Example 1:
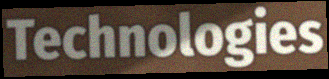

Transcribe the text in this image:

Technologies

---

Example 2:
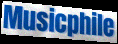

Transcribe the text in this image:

Musicphile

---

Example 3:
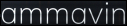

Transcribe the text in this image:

ammavin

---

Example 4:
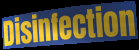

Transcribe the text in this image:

Disinfection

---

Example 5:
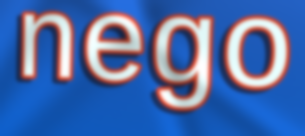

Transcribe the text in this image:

nego